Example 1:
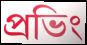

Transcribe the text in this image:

প্রভিং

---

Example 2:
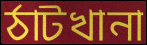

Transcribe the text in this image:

ঠাটখানা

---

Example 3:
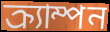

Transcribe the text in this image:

ক্র্যাম্পন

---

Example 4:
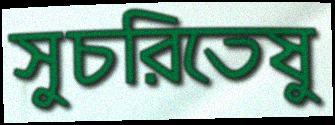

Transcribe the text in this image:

সুচরিতেষু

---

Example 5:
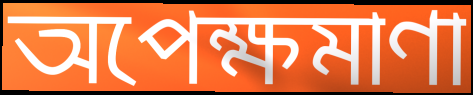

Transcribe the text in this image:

অপেক্ষমাণা